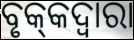
ବୃକ୍‌କଦ୍ଵାରା